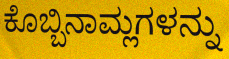
ಕೊಬ್ಬಿನಾಮ್ಲಗಳನ್ನು